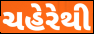
ચહેરેથી